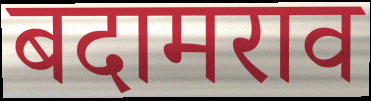
बदामराव